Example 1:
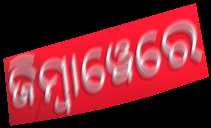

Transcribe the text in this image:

ଜିମ୍ୱାୱେରେ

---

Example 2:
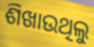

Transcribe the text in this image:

ଶିଖାଉଥିଲୁ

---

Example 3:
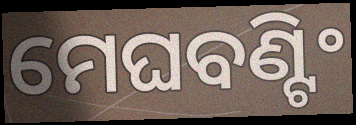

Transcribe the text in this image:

ମେଘବଣ୍ଟିଂ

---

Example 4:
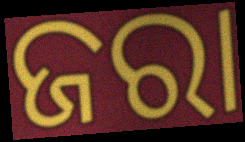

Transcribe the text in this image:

ଜରା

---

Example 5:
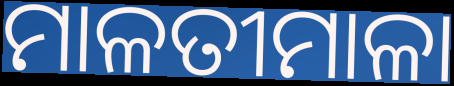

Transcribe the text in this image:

ମାଳତୀମାଳା